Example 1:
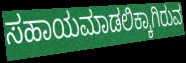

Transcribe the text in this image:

ಸಹಾಯಮಾಡಲಿಕ್ಕಾಗಿರುವ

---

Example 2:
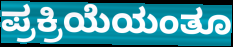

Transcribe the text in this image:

ಪ್ರಕ್ರಿಯೆಯಂತೂ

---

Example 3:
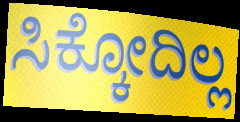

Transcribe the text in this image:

ಸಿಕ್ಕೋದಿಲ್ಲ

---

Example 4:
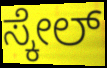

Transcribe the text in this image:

ಸ್ಕೇಲ್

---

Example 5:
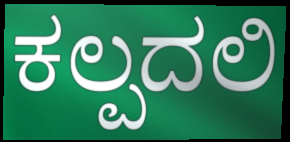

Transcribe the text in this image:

ಕಲ್ಪದಲಿ